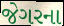
જેગરના